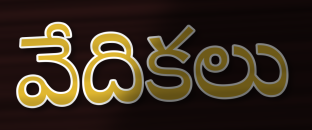
వేదికలు